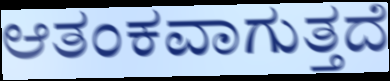
ಆತಂಕವಾಗುತ್ತದೆ